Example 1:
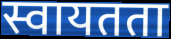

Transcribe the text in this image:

स्वायतता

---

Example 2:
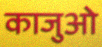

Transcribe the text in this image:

काजुओ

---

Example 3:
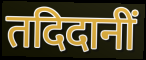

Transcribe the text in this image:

तदिदानीं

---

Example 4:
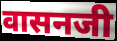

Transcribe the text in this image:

वासनजी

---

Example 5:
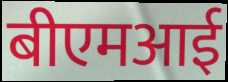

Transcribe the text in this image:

बीएमआई